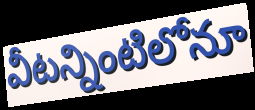
వీటన్నింటిలోనూ